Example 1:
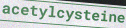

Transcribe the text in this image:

acetylcysteine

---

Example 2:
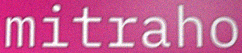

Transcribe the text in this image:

mitraho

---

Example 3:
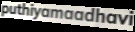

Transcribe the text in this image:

puthiyamaadhavi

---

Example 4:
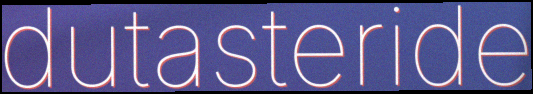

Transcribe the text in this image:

dutasteride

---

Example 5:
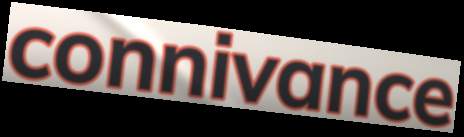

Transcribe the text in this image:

connivance